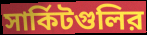
সার্কিটগুলির